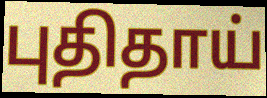
புதிதாய்